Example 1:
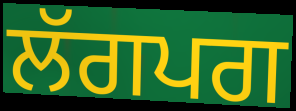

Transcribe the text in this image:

ਲੱਗਪਗ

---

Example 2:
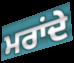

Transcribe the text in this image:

ਮਰਾਂਦੇ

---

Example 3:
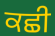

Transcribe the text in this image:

ਕਛੀ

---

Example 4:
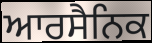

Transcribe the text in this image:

ਆਰਸੈਨਿਕ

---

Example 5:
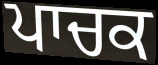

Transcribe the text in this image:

ਪਾਚਕ